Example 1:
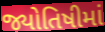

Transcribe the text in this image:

જ્યોતિષીમાં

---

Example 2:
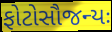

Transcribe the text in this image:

ફોટોસૌજન્યઃ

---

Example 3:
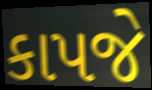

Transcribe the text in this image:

કાપજે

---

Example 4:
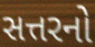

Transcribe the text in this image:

સત્તરનો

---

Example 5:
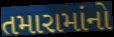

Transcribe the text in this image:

તમારામાંનો